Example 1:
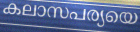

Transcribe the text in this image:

കലാസപര്യയെ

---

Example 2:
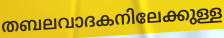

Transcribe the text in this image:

തബലവാദകനിലേക്കുള്ള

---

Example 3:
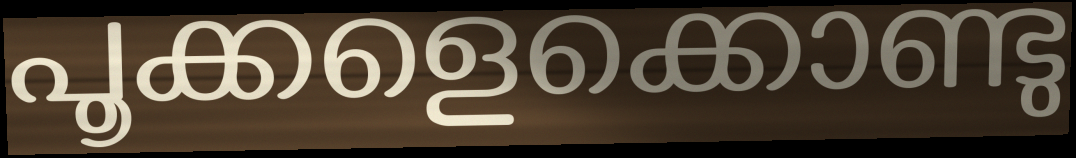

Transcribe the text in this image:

പൂക്കളെക്കൊണ്ടു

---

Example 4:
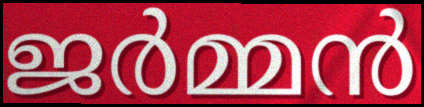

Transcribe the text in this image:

ജർമ്മൻ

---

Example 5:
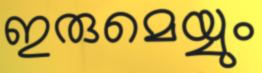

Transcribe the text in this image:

ഇരുമെയ്യും